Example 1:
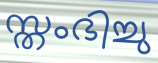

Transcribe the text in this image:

സ്തംഭിച്ചു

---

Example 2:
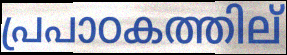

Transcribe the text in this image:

പ്രപാഠകത്തില്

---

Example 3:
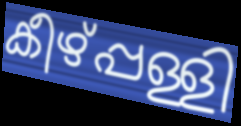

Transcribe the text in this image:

കീഴ്പ്പള്ളി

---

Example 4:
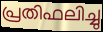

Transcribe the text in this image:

പ്രതിഫലിച്ചു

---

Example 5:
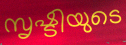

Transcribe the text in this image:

സൃഷ്ടിയുടെ